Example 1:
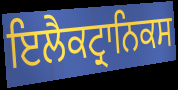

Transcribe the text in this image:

ਇਲੈਕਟ੍ਰਾਨਿਕਸ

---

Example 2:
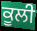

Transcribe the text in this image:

ਕੂਲੀ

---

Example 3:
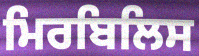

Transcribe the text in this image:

ਮਿਰਬਿਲਿਸ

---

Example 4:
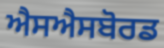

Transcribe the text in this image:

ਐਸਐਸਬੋਰਡ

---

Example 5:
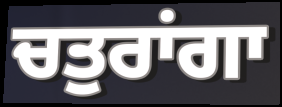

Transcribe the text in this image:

ਚਤੁਰਾਂਗਾ